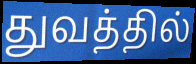
துவத்தில்